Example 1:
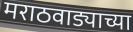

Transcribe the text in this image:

मराठवाड्याच्या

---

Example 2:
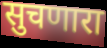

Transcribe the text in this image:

सुचणारा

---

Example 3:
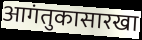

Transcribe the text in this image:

आगंतुकासारखा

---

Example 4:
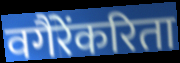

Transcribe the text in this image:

वगैरेंकरिता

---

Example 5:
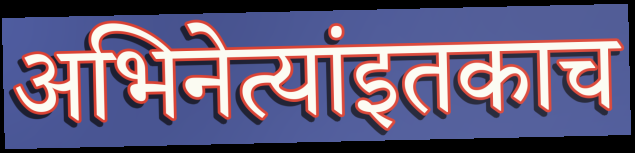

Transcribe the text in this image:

अभिनेत्यांइतकाच